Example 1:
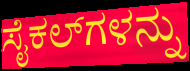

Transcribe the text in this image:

ಸೈಕಲ್‌ಗಳನ್ನು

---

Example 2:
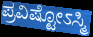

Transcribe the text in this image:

ಪ್ರವಿಷ್ಟೋಽಸ್ಮಿ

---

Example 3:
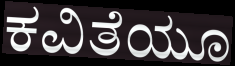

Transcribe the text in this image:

ಕವಿತೆಯೂ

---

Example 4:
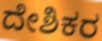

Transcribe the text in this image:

ದೇಶಿಕರ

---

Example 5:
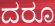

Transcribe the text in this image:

ದರೂ